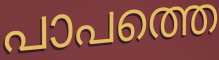
പാപത്തെ